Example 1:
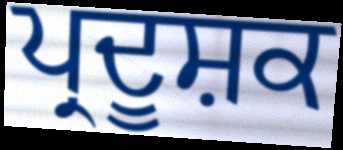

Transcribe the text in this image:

ਪ੍ਰਦੂਸ਼ਕ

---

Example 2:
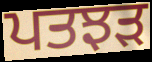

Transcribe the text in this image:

ਪਤਝੜ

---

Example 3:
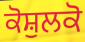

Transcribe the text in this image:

ਕੋਸ਼ੁਲਕੋ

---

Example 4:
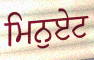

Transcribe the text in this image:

ਮਿਨੁਏਟ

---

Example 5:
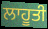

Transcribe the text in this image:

ਲਾਹੂਤੀ